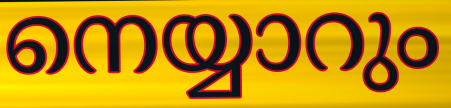
നെയ്യാറും